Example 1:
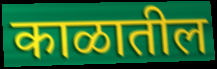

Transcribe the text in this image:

काळातील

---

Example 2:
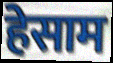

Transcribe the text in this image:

हेसाम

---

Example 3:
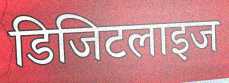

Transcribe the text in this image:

डिजिटलाइज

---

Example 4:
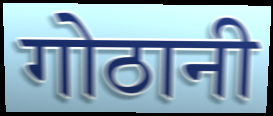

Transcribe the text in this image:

गोठानी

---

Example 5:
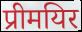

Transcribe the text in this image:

प्रीमयिर